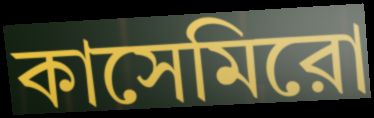
কাসেমিরো